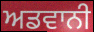
ਅਡਵਾਨੀ